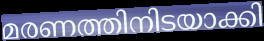
മരണത്തിനിടയാക്കി